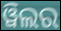
ୱିଲର